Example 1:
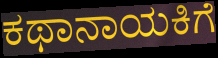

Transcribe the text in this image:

ಕಥಾನಾಯಕಿಗೆ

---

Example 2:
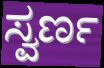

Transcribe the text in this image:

ಸ್ವರ್ಣ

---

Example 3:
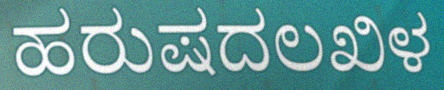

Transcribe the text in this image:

ಹರುಷದಲಖಿಳ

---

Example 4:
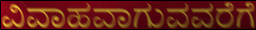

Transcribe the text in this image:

ವಿವಾಹವಾಗುವವರೆಗೆ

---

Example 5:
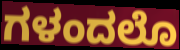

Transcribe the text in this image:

ಗಳಂದಲೊ